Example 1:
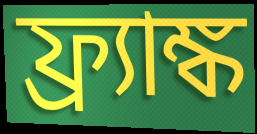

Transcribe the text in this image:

ফ্র্যাঙ্ক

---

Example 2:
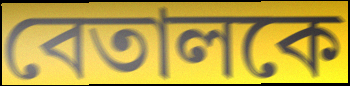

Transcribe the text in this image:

বেতালকে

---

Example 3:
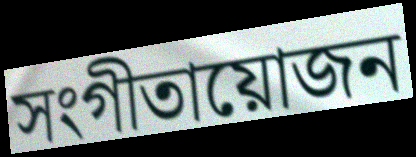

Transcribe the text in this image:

সংগীতায়োজন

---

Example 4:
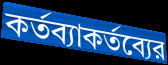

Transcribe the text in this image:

কর্তব্যাকর্তব্যের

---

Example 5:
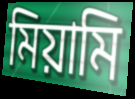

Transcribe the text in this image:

মিয়ামি